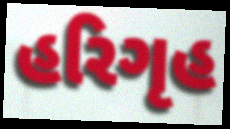
હરિગૃહ